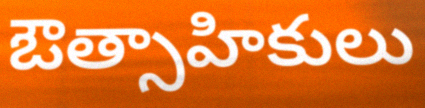
ఔత్సాహికులు